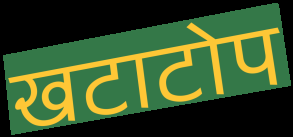
खटाटोप